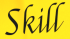
Skill